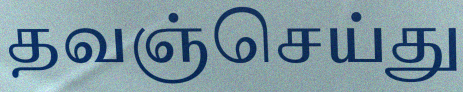
தவஞ்செய்து